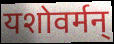
यशोवर्मन्